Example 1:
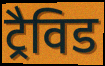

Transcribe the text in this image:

ट्रैविड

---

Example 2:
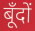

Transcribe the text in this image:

बूँदों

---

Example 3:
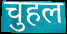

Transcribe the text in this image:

चुहल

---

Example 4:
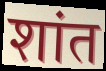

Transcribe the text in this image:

शांत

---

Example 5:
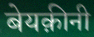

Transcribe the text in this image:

बेयक़ीनी